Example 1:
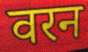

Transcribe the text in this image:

वरन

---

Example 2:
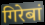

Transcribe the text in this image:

गिरेबां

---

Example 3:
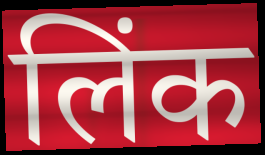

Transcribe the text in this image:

लिंक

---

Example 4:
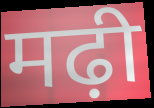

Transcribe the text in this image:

मढ़ी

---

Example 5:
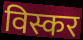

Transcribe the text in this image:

विस्कर